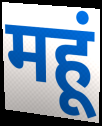
महूं